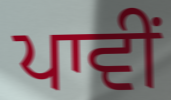
ਪਾਵੀਂ